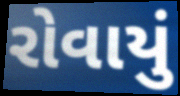
રોવાયું